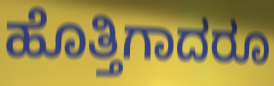
ಹೊತ್ತಿಗಾದರೂ